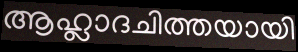
ആഹ്ലാദചിത്തയായി